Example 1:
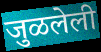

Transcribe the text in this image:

जुळलेली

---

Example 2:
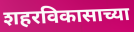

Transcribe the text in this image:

शहरविकासाच्या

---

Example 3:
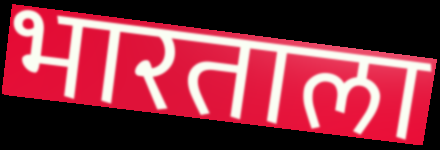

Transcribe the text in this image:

भारताला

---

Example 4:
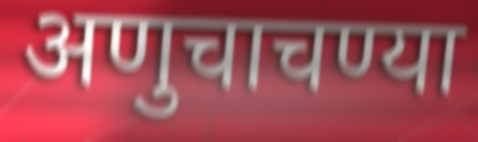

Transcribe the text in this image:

अणुचाचण्या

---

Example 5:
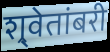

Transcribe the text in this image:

श्र्वेतांबरी